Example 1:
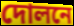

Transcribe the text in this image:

দোলনে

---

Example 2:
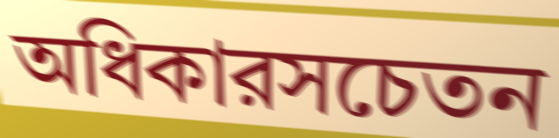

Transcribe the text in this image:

অধিকারসচেতন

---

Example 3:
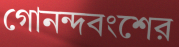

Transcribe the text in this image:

গোনন্দবংশের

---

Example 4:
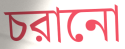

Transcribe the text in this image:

চরানো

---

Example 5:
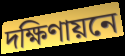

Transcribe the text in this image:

দক্ষিণায়নে